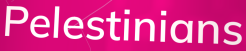
Pelestinians